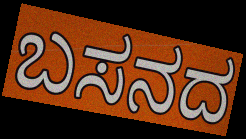
ಬಸನದ